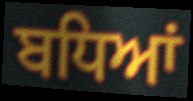
ਬਧਿਆਂ